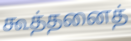
கூத்தனைத்